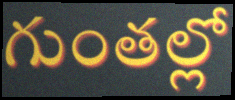
గుంతల్లో